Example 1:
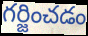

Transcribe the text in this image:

గర్జించడం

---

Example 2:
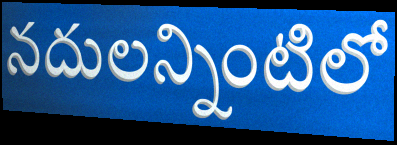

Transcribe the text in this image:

నదులన్నింటిలో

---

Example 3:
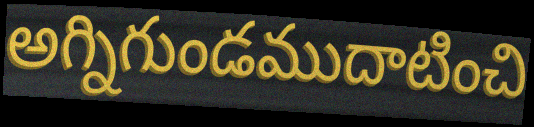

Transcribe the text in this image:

అగ్నిగుండముదాటించి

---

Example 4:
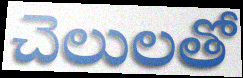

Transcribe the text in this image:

చెలులతో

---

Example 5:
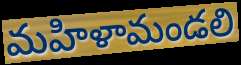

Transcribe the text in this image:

మహిళామండలి